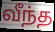
வீந்த